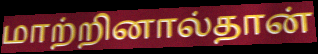
மாற்றினால்தான்